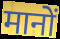
मानों